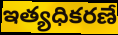
ఇత్యధికరణే